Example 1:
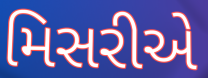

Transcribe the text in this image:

મિસરીએ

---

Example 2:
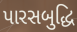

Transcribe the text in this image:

પારસબુદ્ધિ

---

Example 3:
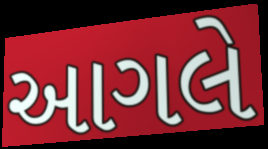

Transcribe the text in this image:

આગલે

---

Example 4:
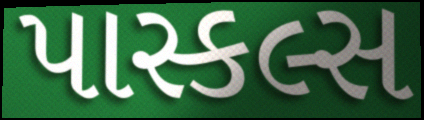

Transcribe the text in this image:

પાસ્કલ્સ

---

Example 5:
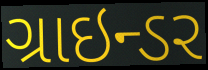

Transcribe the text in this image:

ગ્રાઇન્ડર